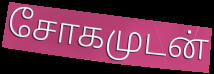
சோகமுடன்